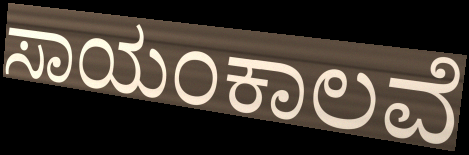
ಸಾಯಂಕಾಲವೆ